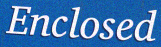
Enclosed